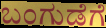
ಬಂಗುಡೆಗೆ